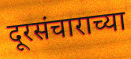
दूरसंचाराच्या